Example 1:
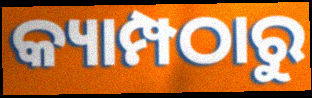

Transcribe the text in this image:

କ୍ୟାମ୍ପଠାରୁ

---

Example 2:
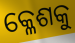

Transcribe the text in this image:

କ୍ଳେଶକୁ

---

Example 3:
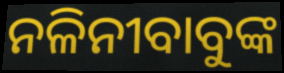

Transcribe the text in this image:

ନଳିନୀବାବୁଙ୍କ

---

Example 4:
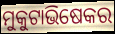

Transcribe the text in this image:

ମୁକୁଟାଭିଷେକର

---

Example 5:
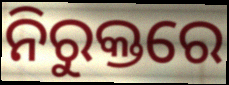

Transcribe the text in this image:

ନିରୁକ୍ତରେ